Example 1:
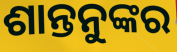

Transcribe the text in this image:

ଶାନ୍ତନୁଙ୍କର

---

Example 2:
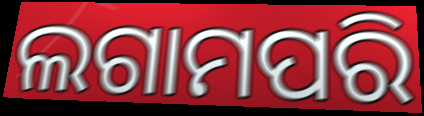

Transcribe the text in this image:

ଲଗାମପରି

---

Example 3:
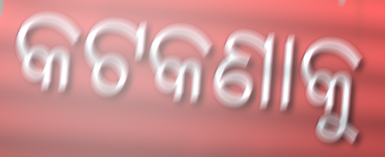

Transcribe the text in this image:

କଟକଣାକୁ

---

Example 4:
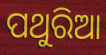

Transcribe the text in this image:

ପଥୁରିଆ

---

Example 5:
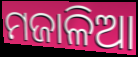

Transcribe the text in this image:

ମଜାଳିଆ